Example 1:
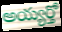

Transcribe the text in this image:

అయ్యర్తో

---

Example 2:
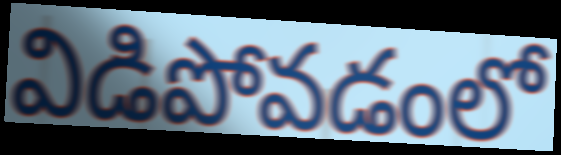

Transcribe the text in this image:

విడిపోవడంలో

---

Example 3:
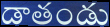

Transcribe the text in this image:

డాతండు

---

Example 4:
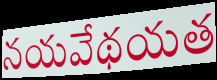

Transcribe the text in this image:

నయవేథయత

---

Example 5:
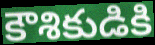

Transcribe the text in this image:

కౌశికుడికి